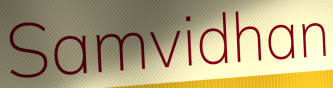
Samvidhan